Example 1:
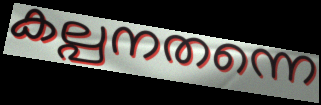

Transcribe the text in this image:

കല്പനതന്നെ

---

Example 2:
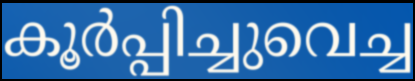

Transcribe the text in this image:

കൂർപ്പിച്ചുവെച്ച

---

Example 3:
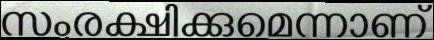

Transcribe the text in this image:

സംരക്ഷിക്കുമെന്നാണ്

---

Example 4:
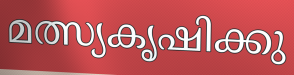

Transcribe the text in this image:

മത്സ്യകൃഷിക്കു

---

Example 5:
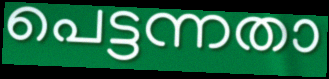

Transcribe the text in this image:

പെട്ടന്നതാ